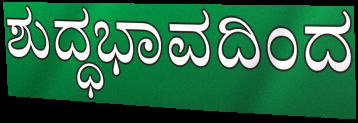
ಶುದ್ಧಭಾವದಿಂದ